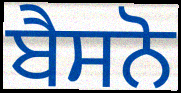
ਬੈਸਨੋ